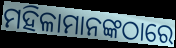
ମହିଳାମାନଙ୍କଠାରେ